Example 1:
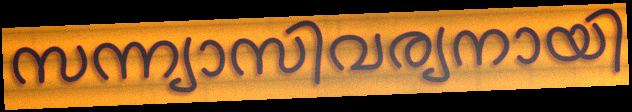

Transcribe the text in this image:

സന്ന്യാസിവര്യനായി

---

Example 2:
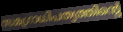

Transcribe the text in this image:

സമഗ്രാധിപത്യത്തിന്റെ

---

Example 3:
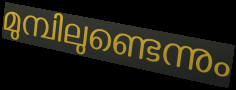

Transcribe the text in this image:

മുമ്പിലുണ്ടെന്നും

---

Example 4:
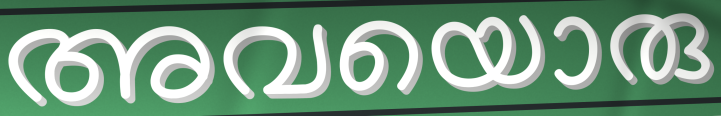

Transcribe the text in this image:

അവയൊരു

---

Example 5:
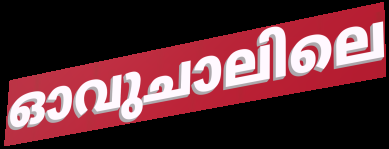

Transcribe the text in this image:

ഓവുചാലിലെ